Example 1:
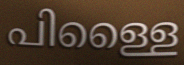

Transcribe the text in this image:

പിള്ളൈ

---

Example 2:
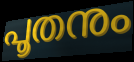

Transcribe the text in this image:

പൂതനും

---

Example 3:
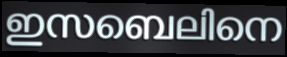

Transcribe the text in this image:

ഇസബെലിനെ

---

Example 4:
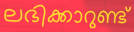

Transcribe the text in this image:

ലഭിക്കാറുണ്ട്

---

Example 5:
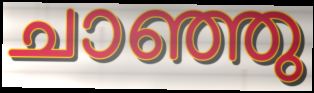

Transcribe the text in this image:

ചാഞ്ഞു